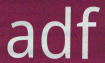
adf